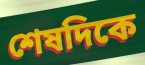
শেষদিকে